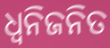
ଧ୍ଵନିଜନିତ